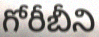
గోరీబీని